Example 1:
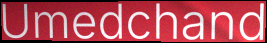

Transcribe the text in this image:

Umedchand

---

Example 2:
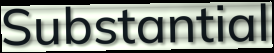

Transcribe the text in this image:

Substantial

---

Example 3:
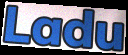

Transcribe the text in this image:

Ladu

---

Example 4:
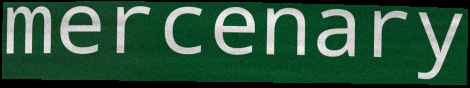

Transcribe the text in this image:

mercenary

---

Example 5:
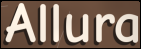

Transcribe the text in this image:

Allura